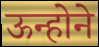
ऊन्होने